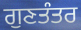
ਗੁਣਤੰਤਰ